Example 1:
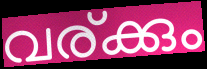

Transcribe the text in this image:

വര്ക്കും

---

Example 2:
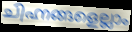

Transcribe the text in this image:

ചിഹ്നങ്ങളെല്ലാം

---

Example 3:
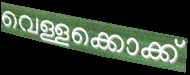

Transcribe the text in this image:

വെള്ളക്കൊക്ക്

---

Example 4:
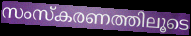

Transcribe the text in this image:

സംസ്കരണത്തിലൂടെ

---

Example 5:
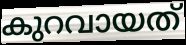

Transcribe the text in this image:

കുറവായത്